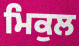
ਮਿਕੁਲ